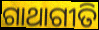
ଗାଥାଗୀତି